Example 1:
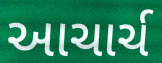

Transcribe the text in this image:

આચાર્ચ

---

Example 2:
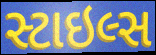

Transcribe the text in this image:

સ્ટાઇલ્સ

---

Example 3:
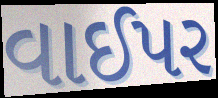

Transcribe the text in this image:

વાઈપર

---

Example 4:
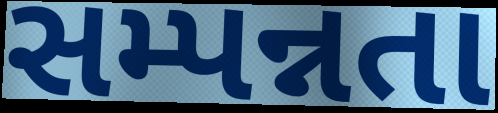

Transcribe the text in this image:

સમ્પન્નતા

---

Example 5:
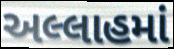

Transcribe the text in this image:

અલ્લાહમાં